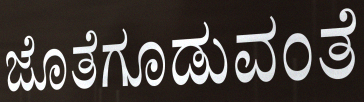
ಜೊತೆಗೂಡುವಂತೆ